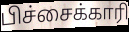
பிச்சைக்காரி